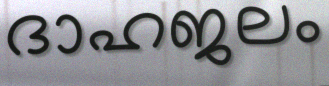
ദാഹജലം